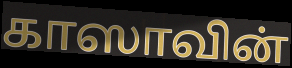
காஸாவின்